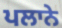
ਪਲਾਨੇ